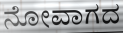
ನೋವಾಗದ